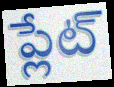
ప్లేట్